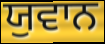
ਯੁਵਾਨ